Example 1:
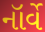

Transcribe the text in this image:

નૉર્વે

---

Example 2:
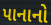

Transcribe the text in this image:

પાનાનો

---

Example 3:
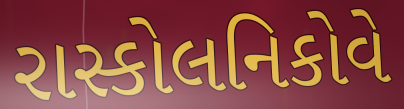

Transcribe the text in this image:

રાસ્કોલનિકોવે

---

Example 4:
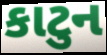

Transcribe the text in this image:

કાટુન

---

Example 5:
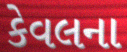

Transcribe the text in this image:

કેવલના